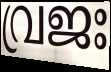
വ്രജഃ